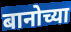
बानोच्या